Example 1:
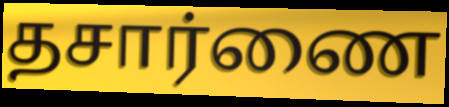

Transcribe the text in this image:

தசார்ணை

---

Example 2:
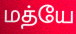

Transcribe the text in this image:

மத்யே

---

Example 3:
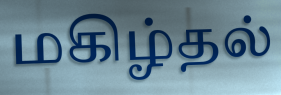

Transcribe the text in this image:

மகிழ்தல்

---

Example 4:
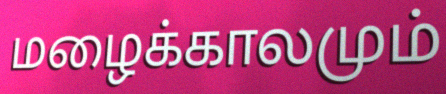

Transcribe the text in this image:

மழைக்காலமும்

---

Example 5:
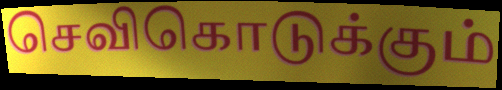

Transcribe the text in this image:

செவிகொடுக்கும்